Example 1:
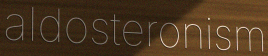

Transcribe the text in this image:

aldosteronism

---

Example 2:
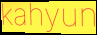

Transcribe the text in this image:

kahyun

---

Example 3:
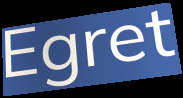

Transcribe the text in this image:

Egret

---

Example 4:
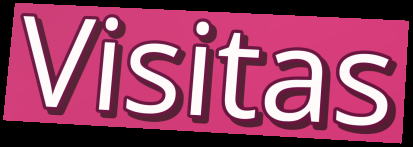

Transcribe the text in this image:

Visitas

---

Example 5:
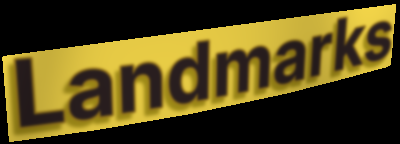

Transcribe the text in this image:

Landmarks